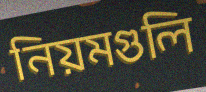
নিয়মগুলি